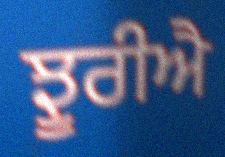
ਝੂਰੀਐ